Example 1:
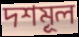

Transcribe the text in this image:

দশমূল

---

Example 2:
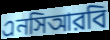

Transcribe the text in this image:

এনসিআরবি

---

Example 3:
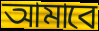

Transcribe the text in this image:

আমাবে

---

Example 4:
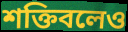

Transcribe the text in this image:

শক্তিবলেও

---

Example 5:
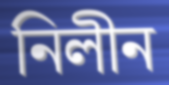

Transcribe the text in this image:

নিলীন